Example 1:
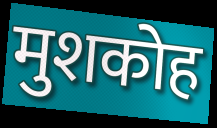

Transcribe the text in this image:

मुशकोह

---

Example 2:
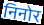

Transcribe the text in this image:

निनोर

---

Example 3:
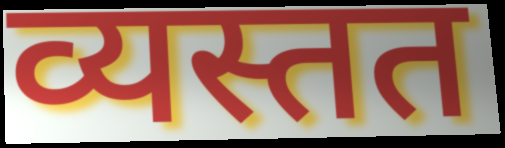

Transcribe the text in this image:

व्यस्तत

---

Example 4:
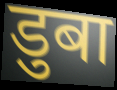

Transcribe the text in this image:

डुबा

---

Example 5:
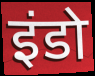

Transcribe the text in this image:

इंडो